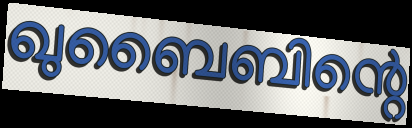
ഖുബൈബിന്റെ